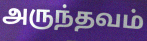
அருந்தவம்